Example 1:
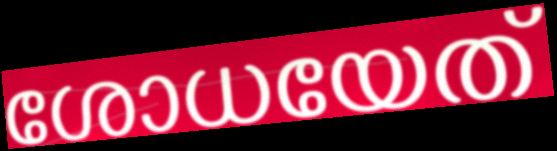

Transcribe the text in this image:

ശോധയേത്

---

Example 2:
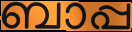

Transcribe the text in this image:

ബാപ്പ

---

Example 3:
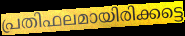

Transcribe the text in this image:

പ്രതിഫലമായിരിക്കട്ടെ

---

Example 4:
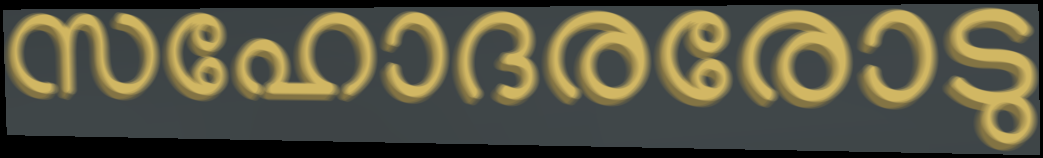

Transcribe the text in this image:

സഹോദരരോടു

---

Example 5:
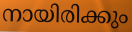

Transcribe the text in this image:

നായിരിക്കും